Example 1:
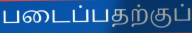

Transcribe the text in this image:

படைப்பதற்குப்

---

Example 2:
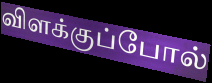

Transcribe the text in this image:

விளக்குப்போல்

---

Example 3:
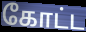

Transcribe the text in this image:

கோட்ட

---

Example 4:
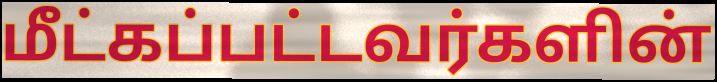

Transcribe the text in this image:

மீட்கப்பட்டவர்களின்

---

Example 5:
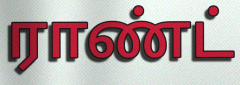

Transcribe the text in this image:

ராண்ட்